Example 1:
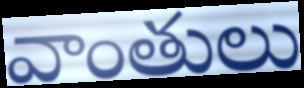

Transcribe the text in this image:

వాంతులు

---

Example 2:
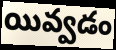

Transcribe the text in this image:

యివ్వడం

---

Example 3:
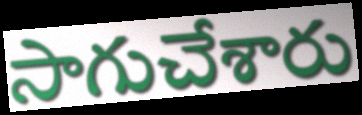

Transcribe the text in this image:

సాగుచేశారు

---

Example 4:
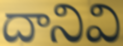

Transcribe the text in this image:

దానివి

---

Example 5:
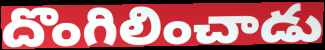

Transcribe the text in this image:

దొంగిలించాడు